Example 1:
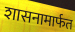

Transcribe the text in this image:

शासनामार्फत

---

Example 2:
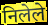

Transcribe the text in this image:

निलेले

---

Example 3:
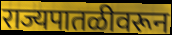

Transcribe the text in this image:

राज्यपातळीवरून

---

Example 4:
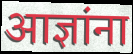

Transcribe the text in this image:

आज्ञांना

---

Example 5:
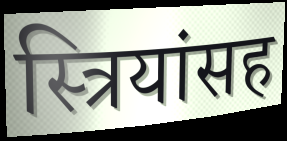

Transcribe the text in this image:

स्त्रियांसह